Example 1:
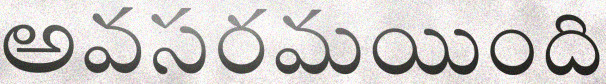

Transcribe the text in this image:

అవసరమయింది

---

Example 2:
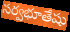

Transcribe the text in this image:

సర్వభూతేషు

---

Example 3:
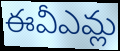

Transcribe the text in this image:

ఈవీఎమ్ల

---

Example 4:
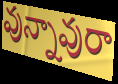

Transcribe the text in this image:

వున్నావురా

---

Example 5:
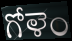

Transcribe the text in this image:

గోళెం